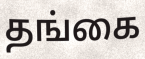
தங்கை